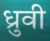
ध्रुवी